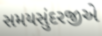
સમયસુંદરજીએ